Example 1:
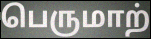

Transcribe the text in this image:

பெருமாற்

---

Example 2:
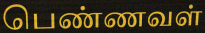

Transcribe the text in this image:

பெண்ணவள்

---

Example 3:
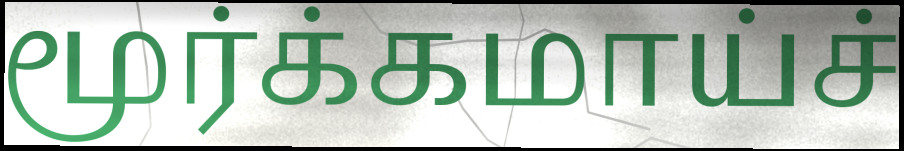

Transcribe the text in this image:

மூர்க்கமாய்ச்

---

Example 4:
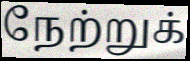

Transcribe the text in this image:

நேற்றுக்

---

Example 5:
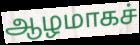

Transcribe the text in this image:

ஆழமாகச்